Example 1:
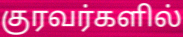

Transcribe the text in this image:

குரவர்களில்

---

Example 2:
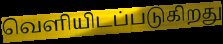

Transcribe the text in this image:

வெளியிடப்படுகிறது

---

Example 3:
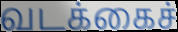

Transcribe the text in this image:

வடக்கைச்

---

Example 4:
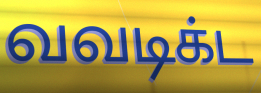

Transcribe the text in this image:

வவடிக்ட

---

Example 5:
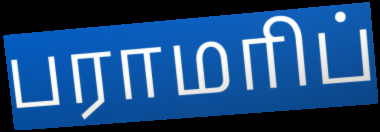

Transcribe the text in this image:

பராமரிப்